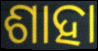
ଶାହା